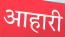
आहारी